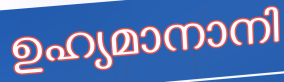
ഉഹ്യമാനാനി